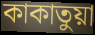
কাকাতুয়া